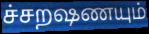
ச்சறஷணயும்